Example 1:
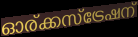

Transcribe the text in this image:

ഓര്ക്കസ്ട്രേഷന്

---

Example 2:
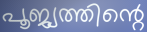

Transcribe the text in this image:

പൂജ്യത്തിന്റെ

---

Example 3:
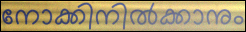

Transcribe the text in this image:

നോക്കിനിൽക്കാനും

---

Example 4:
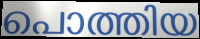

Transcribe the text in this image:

പൊത്തിയ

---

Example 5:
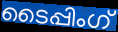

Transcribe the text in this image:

ടൈപ്പിംഗ്